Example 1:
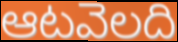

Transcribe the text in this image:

ఆటవెలది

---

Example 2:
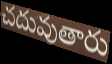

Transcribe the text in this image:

చదువుతారు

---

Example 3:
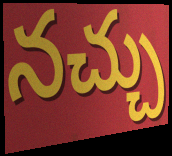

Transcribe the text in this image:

నచ్చు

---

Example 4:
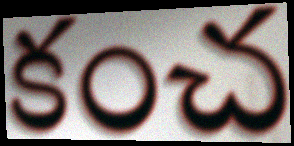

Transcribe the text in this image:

కంచ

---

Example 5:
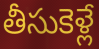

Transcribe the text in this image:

తీసుకెళ్లే